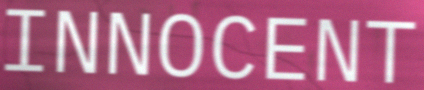
INNOCENT